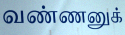
வண்ணனுக்